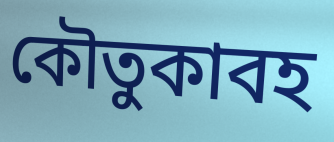
কৌতুকাবহ